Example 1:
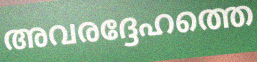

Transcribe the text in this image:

അവരദ്ദേഹത്തെ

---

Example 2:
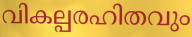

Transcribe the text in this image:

വികല്പരഹിതവും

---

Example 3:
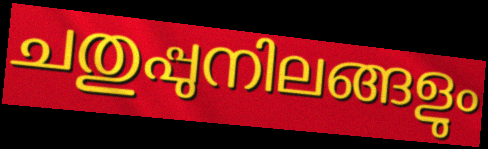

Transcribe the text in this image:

ചതുപ്പുനിലങ്ങളും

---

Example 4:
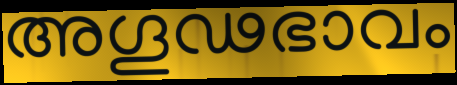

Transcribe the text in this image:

അഗൂഢഭാവം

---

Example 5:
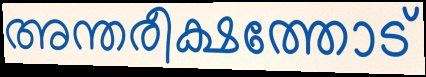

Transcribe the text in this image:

അന്തരീക്ഷത്തോട്